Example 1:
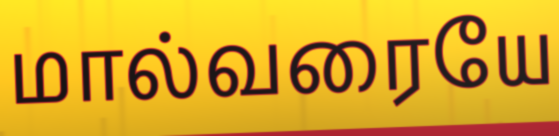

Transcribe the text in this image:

மால்வரையே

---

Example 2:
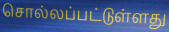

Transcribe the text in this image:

சொல்லப்பட்டுள்ளது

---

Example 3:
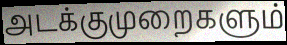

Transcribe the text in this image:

அடக்குமுறைகளும்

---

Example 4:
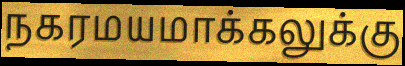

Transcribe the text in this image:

நகரமயமாக்கலுக்கு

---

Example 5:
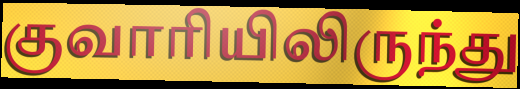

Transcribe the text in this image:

குவாரியிலிருந்து